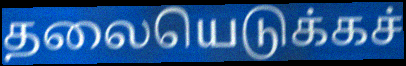
தலையெடுக்கச்